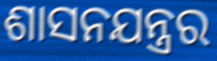
ଶାସନଯନ୍ତ୍ରର